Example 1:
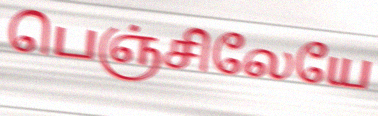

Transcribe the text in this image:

பெஞ்சிலேயே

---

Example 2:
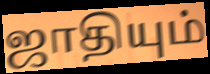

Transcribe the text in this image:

ஜாதியும்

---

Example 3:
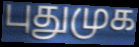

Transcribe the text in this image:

புதுமுக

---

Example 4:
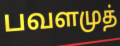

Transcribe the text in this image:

பவளமுத்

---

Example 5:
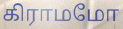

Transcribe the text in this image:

கிராமமோ